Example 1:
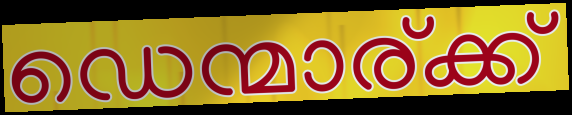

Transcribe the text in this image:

ഡെന്മാര്ക്ക്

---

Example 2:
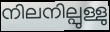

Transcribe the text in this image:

നിലനില്പുള്ളു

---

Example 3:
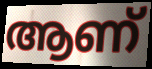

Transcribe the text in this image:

ആണ്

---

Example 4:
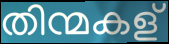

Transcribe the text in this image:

തിന്മകള്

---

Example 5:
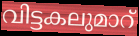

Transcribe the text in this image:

വിട്ടകലുമാറ്